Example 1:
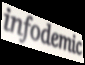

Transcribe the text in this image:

infodemic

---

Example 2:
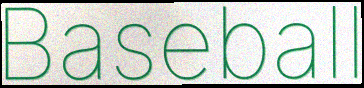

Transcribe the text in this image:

Baseball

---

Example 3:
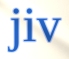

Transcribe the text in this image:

jiv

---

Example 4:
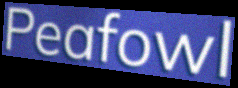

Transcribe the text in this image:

Peafowl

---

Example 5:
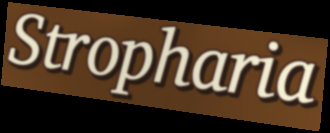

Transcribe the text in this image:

Stropharia